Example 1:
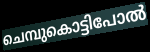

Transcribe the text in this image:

ചെമ്പുകൊട്ടിപോൽ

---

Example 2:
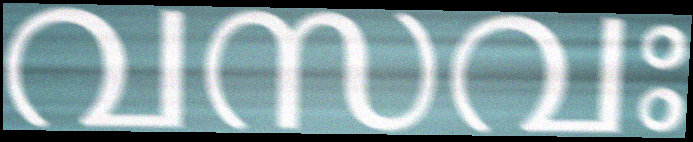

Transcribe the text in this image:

വസവഃ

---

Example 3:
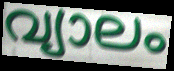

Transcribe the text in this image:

വ്യാലം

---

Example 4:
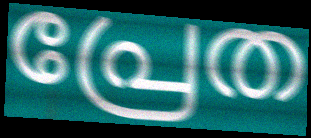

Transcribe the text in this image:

പ്രേത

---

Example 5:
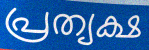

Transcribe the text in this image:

പ്രത്യക്ഷ